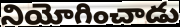
నియోగించాడు